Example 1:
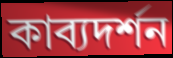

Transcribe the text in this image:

কাব্যদর্শন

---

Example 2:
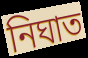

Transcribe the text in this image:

নিঘাত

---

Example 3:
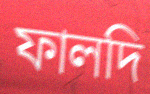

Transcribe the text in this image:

ফালদি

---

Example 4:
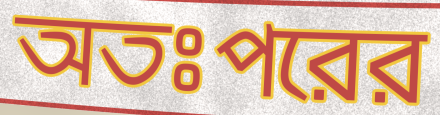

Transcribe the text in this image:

অতঃপরের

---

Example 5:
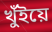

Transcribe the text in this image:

খুঁইয়ে